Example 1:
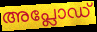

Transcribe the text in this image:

അപ്ലോഡ്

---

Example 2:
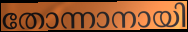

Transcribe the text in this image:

തോന്നാനായി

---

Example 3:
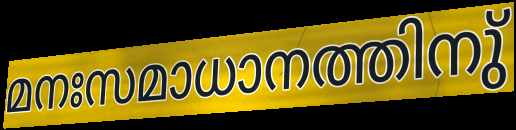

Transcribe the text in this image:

മനഃസമാധാനത്തിനു്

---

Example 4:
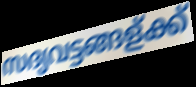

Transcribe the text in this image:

സദ്യവട്ടങ്ങള്ക്ക്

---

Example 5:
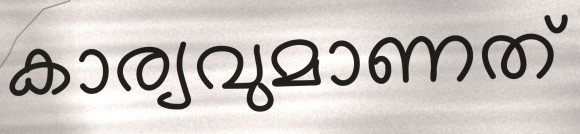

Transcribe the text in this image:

കാര്യവുമാണത്